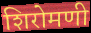
शिरोमणी